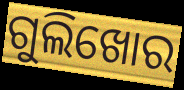
ଗୁଲିଖୋର